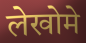
लेखोमे